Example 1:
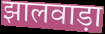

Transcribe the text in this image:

झालवाड़ा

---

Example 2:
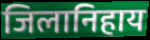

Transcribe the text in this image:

जिलानिहाय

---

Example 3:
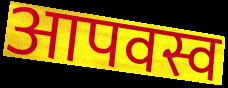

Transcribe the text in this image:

आपवस्व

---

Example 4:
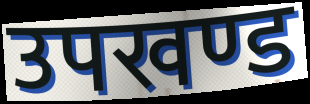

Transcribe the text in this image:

उपखण्ड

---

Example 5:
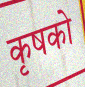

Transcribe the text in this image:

कृषको